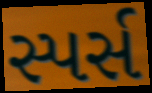
સ્પર્સ